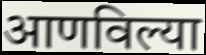
आणविल्या